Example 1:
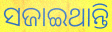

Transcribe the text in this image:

ସଜାଇଥାନ୍ତି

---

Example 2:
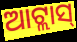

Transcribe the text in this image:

ଆଟ୍ଲାସ୍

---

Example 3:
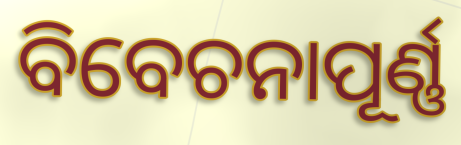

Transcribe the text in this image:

ବିବେଚନାପୂର୍ଣ୍ଣ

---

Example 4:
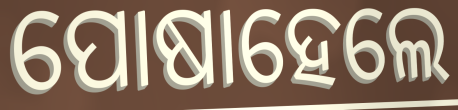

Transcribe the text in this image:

ପୋଷାହେଲେ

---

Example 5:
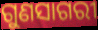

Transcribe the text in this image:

ଗୁଣସାଗରୀ